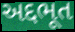
અદ્દભૂત